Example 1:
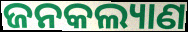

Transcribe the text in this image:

ଜନକଲ୍ୟାଣ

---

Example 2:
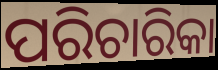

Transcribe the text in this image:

ପରିଚାରିକା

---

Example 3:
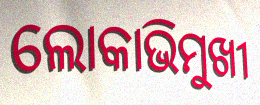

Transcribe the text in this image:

ଲୋକାଭିମୁଖୀ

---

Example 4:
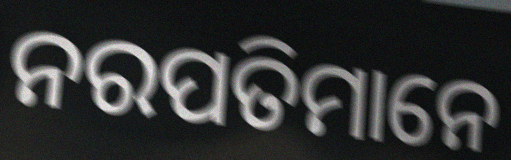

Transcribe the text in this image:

ନରପତିମାନେ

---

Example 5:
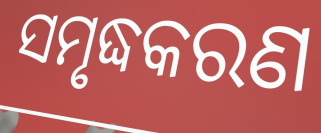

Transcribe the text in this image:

ସମୃଦ୍ଧକରଣ